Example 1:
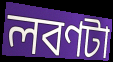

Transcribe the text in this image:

লবণটা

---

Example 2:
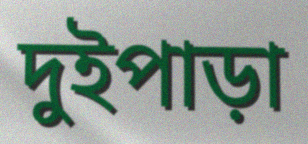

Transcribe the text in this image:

দুইপাড়া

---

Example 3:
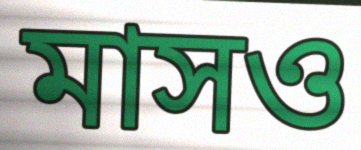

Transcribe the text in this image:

মাসও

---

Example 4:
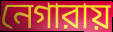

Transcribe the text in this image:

নেগারায়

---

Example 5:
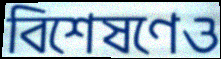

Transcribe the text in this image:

বিশেষণেও